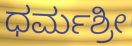
ಧರ್ಮಶ್ರೀ